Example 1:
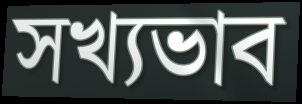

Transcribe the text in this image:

সখ্যভাব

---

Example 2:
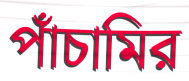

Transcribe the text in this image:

পাঁচামির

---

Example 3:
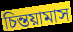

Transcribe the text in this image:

চিন্তয়ামাস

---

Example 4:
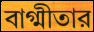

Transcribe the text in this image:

বাগ্মীতার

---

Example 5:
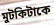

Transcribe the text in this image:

মুটকিটাকে